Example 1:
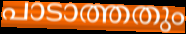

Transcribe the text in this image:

പാടാത്തതും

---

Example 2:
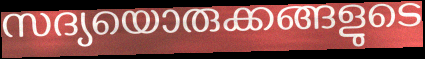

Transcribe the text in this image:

സദ്യയൊരുക്കങ്ങളുടെ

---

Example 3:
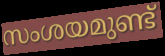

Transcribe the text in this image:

സംശയമുണ്ട്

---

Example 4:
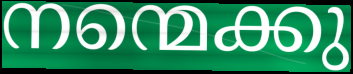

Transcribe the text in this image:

നന്മെക്കു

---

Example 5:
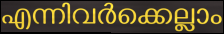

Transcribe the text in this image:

എന്നിവർക്കെല്ലാം